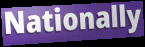
Nationally